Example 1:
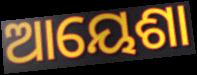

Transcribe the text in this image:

ଆୟେଶା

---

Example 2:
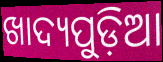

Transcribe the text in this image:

ଖାଦ୍ୟପୁଡ଼ିଆ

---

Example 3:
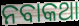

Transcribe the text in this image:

ନବାକଥା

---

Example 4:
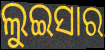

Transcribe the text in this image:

ଲୁଇସାର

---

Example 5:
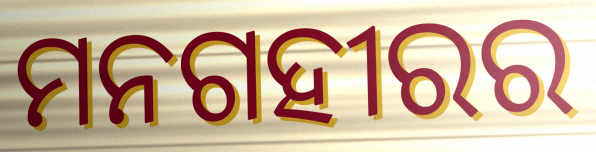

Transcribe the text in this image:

ମନଗହୀରର